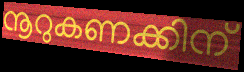
നൂറുകണക്കിന്